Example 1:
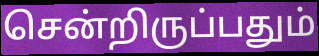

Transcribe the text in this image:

சென்றிருப்பதும்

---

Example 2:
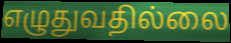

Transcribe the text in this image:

எழுதுவதில்லை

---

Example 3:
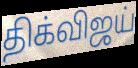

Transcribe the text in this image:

திக்விஜய்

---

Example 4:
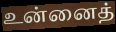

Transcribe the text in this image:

உன்னைத்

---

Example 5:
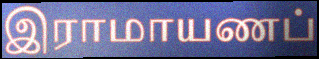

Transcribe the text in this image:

இராமாயணப்